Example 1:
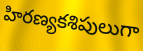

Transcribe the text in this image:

హిరణ్యకశిపులుగా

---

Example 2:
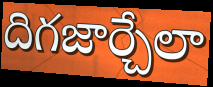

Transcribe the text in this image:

దిగజార్చేలా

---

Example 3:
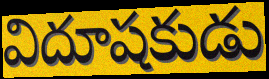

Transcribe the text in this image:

విదూషకుడు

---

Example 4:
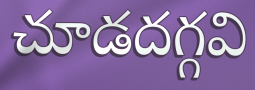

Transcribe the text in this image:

చూడదగ్గవి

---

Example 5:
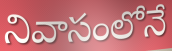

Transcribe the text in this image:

నివాసంలోనే